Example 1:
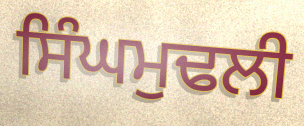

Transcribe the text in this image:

ਸਿੰਘਮੁਢਲੀ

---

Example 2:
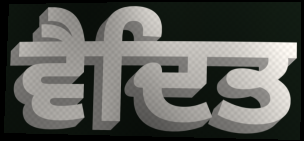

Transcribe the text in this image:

ਵੈਦਿਤ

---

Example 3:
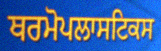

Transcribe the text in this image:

ਥਰਮੋਪਲਾਸਟਿਕਸ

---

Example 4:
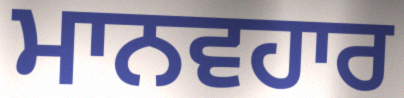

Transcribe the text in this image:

ਮਾਨਵਹਾਰ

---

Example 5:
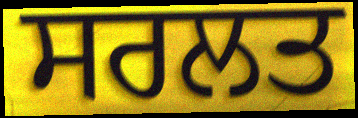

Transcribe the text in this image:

ਸਰਲਤ